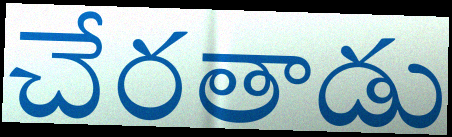
చేరతాడు